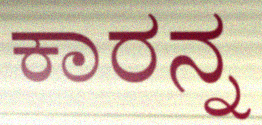
ಕಾರನ್ನ